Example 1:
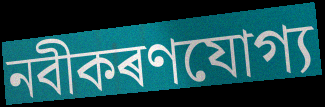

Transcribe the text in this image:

নবীকৰণযোগ্য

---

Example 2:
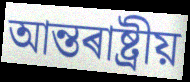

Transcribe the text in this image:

আন্তৰাষ্ট্ৰীয়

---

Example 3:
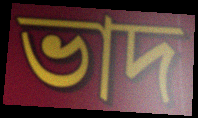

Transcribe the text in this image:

ভাদ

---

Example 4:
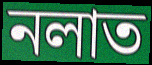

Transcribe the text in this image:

নলাত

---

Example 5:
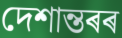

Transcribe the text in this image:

দেশান্তৰৰ